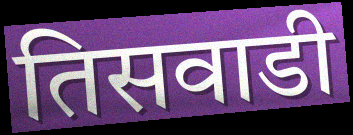
तिसवाडी